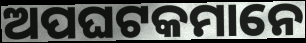
ଅପଘଟକମାନେ